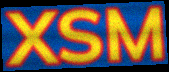
XSM